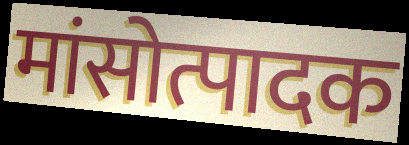
मांसोत्पादक